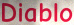
Diablo